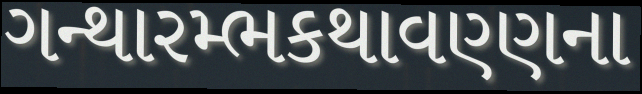
ગન્થારમ્ભકથાવણ્ણના